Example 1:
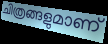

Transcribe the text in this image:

ചിത്രങ്ങളുമാണ്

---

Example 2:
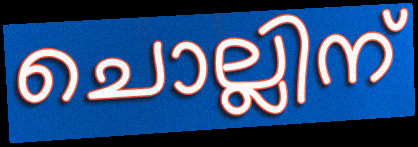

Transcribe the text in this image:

ചൊല്ലിന്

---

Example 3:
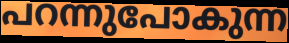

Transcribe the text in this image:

പറന്നുപോകുന്ന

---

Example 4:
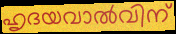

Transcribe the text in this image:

ഹൃദയവാൽവിന്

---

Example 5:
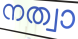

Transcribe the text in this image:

നത്വാ